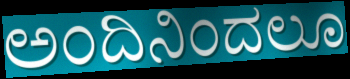
ಅಂದಿನಿಂದಲೂ